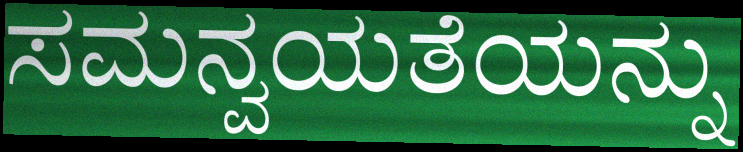
ಸಮನ್ವಯತೆಯನ್ನು